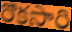
రొకసారి